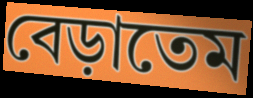
বেড়াতেম